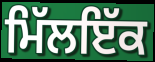
ਮਿੱਲਇੱਕ